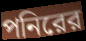
পনিরের